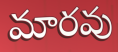
మారవు